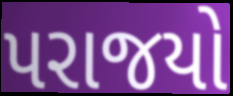
પરાજયો